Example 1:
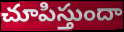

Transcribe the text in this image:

చూపిస్తుందా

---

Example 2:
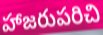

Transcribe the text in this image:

హాజరుపరిచి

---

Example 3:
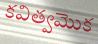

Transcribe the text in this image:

కవిత్వమొక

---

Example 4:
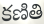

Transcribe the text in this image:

కణితి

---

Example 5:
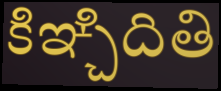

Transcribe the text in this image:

కిఞ్చిదితి